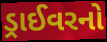
ડ્રાઈવરનો